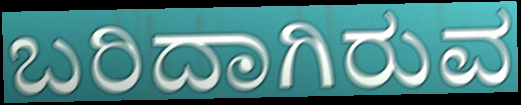
ಬರಿದಾಗಿರುವ